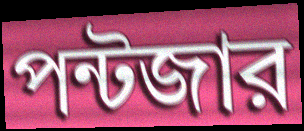
পন্টজার